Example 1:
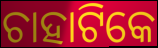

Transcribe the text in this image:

ଚାହାଟିକେ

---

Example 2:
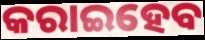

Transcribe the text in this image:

କରାଇହେବ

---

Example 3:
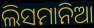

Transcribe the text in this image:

ଲିସମାନିଆ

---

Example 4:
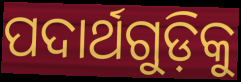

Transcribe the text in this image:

ପଦାର୍ଥଗୁଡ଼ିକୁ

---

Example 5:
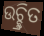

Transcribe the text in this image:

ଉଚ୍ଛ୍ରିତ